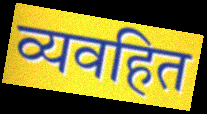
व्यवहित